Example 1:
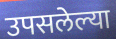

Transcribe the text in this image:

उपसलेल्या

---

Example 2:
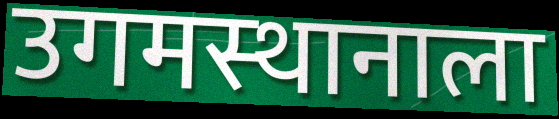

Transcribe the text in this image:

उगमस्थानाला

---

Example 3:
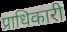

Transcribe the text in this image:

प्राधिकारी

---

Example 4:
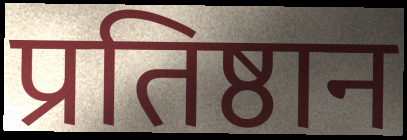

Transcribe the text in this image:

प्रतिष्ठान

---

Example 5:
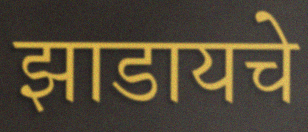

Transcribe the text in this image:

झाडायचे